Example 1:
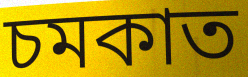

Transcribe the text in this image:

চমকাত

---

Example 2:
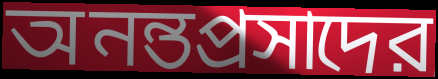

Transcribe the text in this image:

অনন্তপ্রসাদের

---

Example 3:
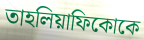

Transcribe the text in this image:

তাহলিয়াফিকোকে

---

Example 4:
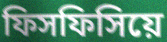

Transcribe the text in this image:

ফিসফিসিয়ে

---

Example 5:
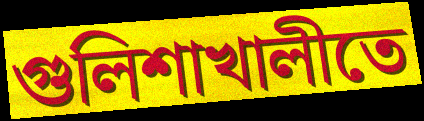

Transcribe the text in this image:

গুলিশাখালীতে